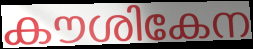
കൗശികേന